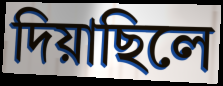
দিয়াছিলে